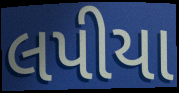
લપીયા